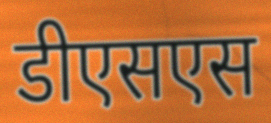
डीएसएस